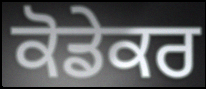
ਕੋਡੇਕਰ